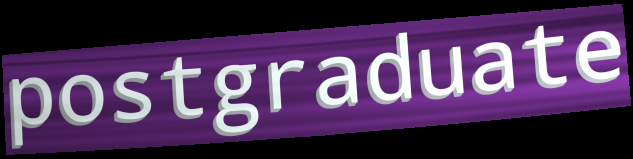
postgraduate